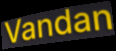
Vandan